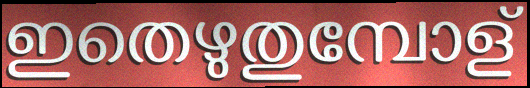
ഇതെഴുതുമ്പോള്